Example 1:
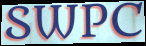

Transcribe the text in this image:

SWPC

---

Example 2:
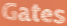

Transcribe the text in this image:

Gates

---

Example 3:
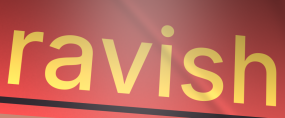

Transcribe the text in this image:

ravish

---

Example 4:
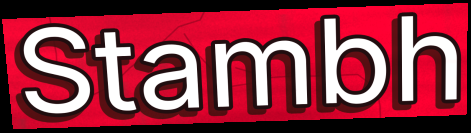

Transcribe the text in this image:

Stambh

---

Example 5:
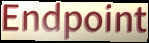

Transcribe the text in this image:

Endpoint